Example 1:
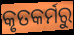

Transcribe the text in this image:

କୃତକର୍ମରୁ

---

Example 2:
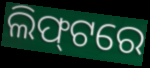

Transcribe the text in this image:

ଲିଫ୍‍ଟରେ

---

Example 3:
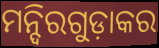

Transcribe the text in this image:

ମନ୍ଦିରଗୁଡ଼ାକର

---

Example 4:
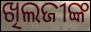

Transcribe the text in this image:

ଖିଲଜୀଙ୍କ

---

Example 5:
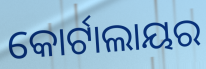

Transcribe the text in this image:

କୋର୍ଟାଲାୟର